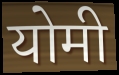
योमी